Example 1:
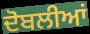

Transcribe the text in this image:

ਦੋਬਲੀਆਂ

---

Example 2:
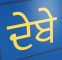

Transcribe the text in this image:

ਦੇਬੇ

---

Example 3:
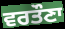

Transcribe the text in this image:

ਵਰਤੌਣਾ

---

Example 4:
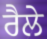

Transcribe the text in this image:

ਰੈਲੇ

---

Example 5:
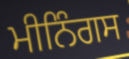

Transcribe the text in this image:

ਮੀਨਿੰਗਸ